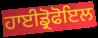
ਹਾਈਡ੍ਰੋਫੋਇਲ